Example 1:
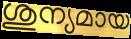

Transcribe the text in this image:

ശുന്യമായ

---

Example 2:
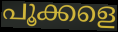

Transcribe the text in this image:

പൂക്കളെ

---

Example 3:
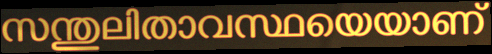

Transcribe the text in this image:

സന്തുലിതാവസ്ഥയെയാണ്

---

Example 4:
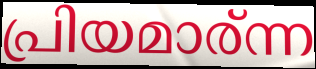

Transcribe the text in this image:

പ്രിയമാര്ന്ന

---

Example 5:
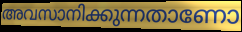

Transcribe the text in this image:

അവസാനിക്കുന്നതാണോ